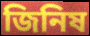
জিনিষ